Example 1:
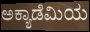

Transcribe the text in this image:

ಅಕ್ಯಾಡೆಮಿಯ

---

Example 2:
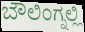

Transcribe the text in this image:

ಬೌಲಿಂಗ್ನಲ್ಲಿ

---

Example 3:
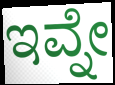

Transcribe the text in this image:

ಇವ್ನೇ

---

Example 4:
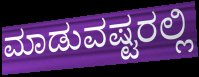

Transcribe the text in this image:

ಮಾಡುವಷ್ಟರಲ್ಲಿ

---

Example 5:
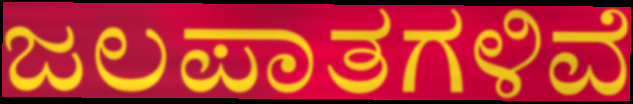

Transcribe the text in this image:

ಜಲಪಾತಗಳಿವೆ